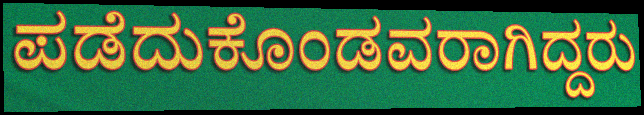
ಪಡೆದುಕೊಂಡವರಾಗಿದ್ದರು